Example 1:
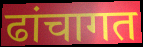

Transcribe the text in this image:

ढांचागत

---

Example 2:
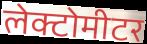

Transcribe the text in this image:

लेक्टोमीटर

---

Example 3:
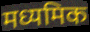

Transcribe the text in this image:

मध्यमिक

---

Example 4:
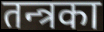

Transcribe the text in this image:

तन्त्रका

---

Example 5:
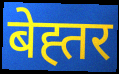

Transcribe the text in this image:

बेह्तर